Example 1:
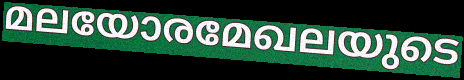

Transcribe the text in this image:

മലയോരമേഖലയുടെ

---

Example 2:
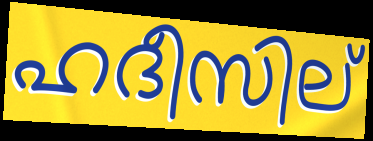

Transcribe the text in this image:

ഹദീസില്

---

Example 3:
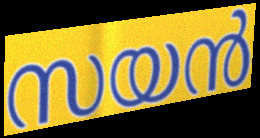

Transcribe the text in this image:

സയൻ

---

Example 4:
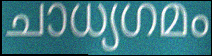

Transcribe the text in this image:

ചാധ്യഗമം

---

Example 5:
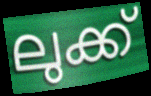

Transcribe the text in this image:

ലുക്ക്